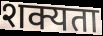
शक्यता